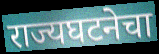
राज्यघटनेचा